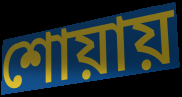
শোয়ায়